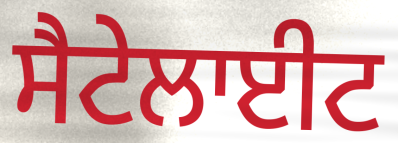
ਸੈਟੇਲਾਈਟ